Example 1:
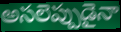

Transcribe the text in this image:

అసలెప్పుడైనా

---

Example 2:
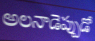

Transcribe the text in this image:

అలనాడెప్పుడో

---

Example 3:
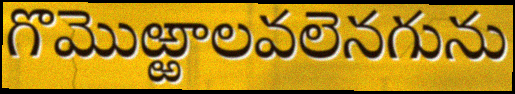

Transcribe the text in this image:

గొమొఱ్ఱాలవలెనగును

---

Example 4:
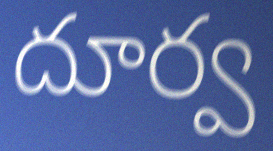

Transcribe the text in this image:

దూర్వ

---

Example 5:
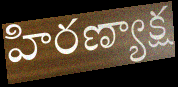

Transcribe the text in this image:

హిరణ్యాక్ష